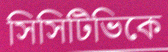
সিসিটিভিকে